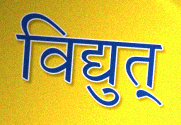
विद्युत्